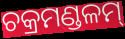
ଚକ୍ରମଣ୍ଡଳମ୍